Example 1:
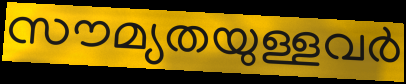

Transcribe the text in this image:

സൗമ്യതയുള്ളവർ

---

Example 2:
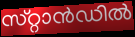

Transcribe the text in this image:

സ്‌റ്റാൻഡിൽ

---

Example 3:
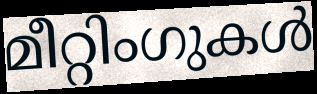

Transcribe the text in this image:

മീറ്റിംഗുകൾ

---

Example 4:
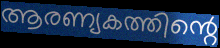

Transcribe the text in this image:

ആരണ്യകത്തിന്റെ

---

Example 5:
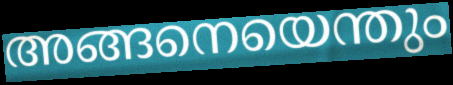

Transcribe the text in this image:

അങ്ങനെയെന്തും